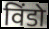
विंडो